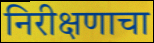
निरीक्षणाचा